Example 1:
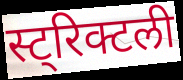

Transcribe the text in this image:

स्ट्रिक्टली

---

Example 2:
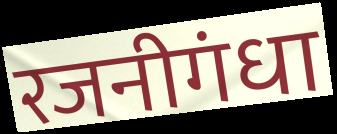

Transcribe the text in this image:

रजनीगंधा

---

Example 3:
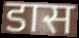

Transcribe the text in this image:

डास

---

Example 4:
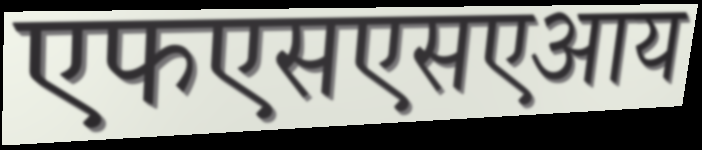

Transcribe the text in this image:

एफएसएसएआय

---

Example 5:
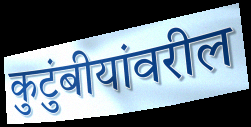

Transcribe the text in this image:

कुटुंबीयांवरील